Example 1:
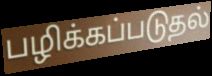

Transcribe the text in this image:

பழிக்கப்படுதல்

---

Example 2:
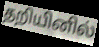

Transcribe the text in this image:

தறியினில்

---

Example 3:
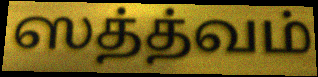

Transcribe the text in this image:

ஸத்த்வம்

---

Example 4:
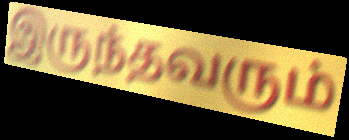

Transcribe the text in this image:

இருந்தவரும்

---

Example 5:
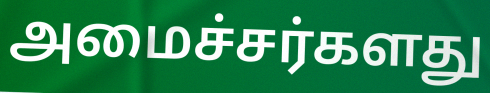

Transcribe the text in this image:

அமைச்சர்களது